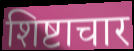
शिष्टाचार